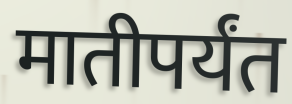
मातीपर्यंत